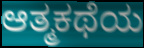
ಆತ್ಮಕಥೆಯ